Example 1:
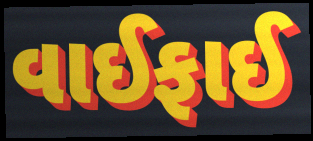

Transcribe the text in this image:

વાઈફાઈ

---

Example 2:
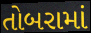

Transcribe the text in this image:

તોબરામાં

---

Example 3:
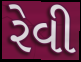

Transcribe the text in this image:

રેવી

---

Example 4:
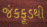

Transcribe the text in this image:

જંકફૂડથી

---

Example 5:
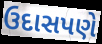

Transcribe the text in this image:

ઉદાસપણે